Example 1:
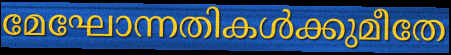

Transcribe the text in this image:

മേഘോന്നതികൾക്കുമീതേ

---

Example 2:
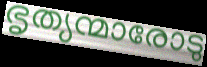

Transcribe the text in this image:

ഭൃത്യന്മാരോടു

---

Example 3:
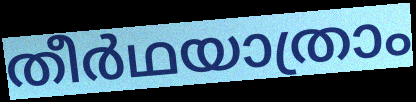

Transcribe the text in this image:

തീർഥയാത്രാം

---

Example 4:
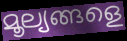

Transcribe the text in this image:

മൂല്യങ്ങളെ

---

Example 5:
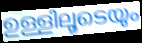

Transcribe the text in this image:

ഉള്ളിലൂടെയും